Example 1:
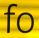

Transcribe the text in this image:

fo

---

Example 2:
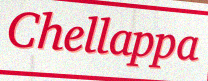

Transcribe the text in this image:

Chellappa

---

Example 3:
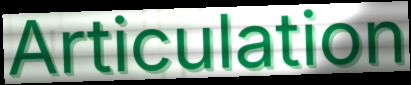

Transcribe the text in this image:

Articulation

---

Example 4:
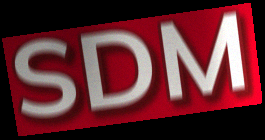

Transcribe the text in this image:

SDM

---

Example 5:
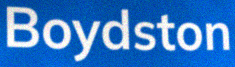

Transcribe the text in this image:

Boydston